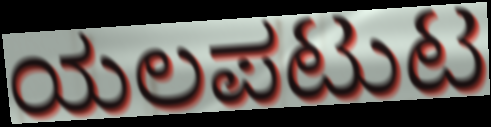
ಯಲಪಟುಟ